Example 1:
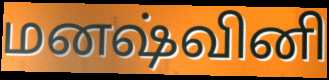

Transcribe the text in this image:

மனஷ்வினி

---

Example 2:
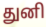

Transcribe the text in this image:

துனி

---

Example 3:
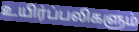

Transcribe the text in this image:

உயிர்ப்பலிகளும்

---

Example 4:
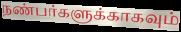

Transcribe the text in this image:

நண்பர்களுக்காகவும்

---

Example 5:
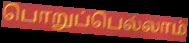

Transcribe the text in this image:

பொறுப்பெல்லாம்